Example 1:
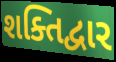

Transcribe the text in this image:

શક્તિદ્વાર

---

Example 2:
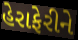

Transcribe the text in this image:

હેરાફેરીને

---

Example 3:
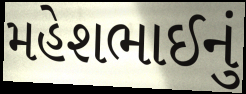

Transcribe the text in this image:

મહેશભાઈનું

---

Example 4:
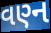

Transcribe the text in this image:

વણ્ન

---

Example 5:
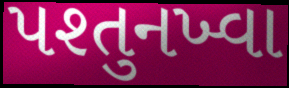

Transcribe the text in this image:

પશ્તુનખ્વા